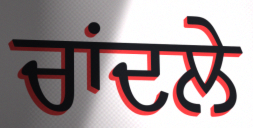
ਚਾਂਦਲੇ